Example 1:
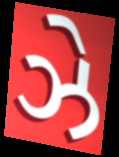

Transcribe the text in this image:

ઝે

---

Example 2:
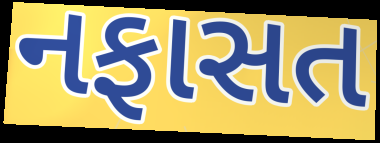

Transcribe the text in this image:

નફાસત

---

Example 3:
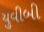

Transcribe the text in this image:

યુવીબી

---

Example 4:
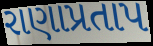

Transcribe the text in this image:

રાણાપ્રતાપ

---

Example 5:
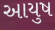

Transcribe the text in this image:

આયુષ